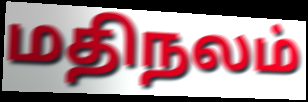
மதிநலம்